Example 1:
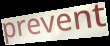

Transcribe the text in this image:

prevent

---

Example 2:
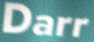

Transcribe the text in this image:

Darr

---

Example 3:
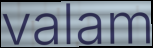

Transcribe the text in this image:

valam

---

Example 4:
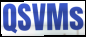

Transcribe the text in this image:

QSVMs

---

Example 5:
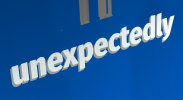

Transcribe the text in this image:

unexpectedly